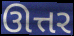
ઊત્તર